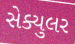
સેક્યુલર